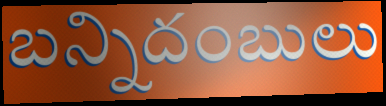
బన్నిదంబులు